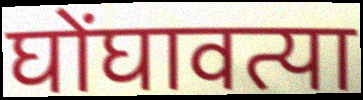
घोंघावत्या